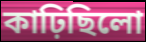
কাঢ়িছিলো